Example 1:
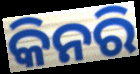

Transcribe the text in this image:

କିନରି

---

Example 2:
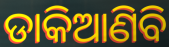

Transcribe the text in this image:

ଡାକିଆଣିବି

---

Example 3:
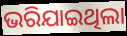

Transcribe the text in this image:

ଭରିଯାଇଥିଲା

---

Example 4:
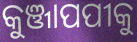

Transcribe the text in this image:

କୁଞ୍ଜାପପୀକୁ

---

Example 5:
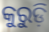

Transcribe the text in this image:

କୁରୁଡ଼ି